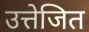
उत्तेजित